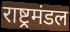
राष्ट्रमंडल